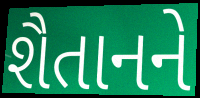
શૈતાનને